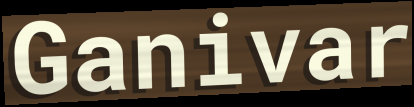
Ganivar